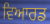
ਵਿਆਰਡ